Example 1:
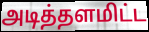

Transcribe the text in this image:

அடித்தளமிட்ட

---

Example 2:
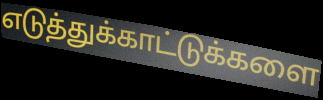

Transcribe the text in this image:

எடுத்துக்காட்டுக்களை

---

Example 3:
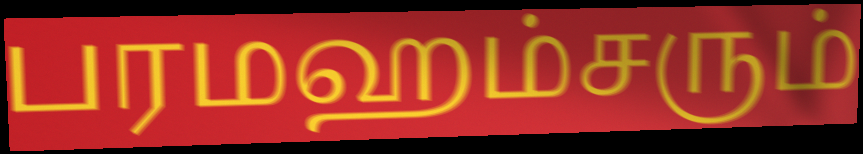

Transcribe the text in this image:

பரமஹம்சரும்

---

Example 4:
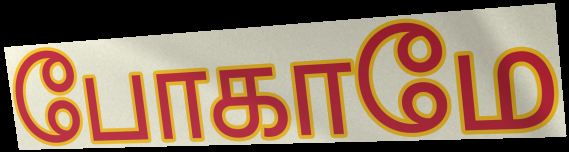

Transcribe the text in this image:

போகாமே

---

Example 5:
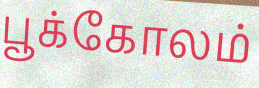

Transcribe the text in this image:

பூக்கோலம்